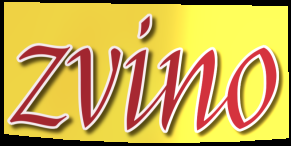
zvino